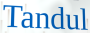
Tandul